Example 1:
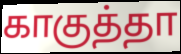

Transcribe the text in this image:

காகுத்தா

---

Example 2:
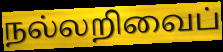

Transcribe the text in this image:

நல்லறிவைப்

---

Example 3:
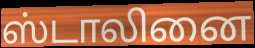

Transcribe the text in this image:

ஸ்டாலினை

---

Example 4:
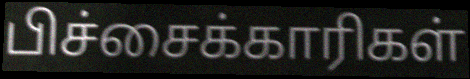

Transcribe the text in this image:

பிச்சைக்காரிகள்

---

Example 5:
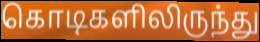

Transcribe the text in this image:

கொடிகளிலிருந்து